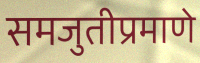
समजुतीप्रमाणे